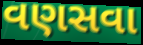
વણસવા